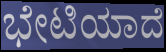
ಭೇಟಿಯಾದೆ